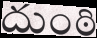
దుంఠి